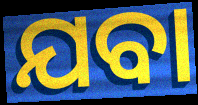
ଯବା